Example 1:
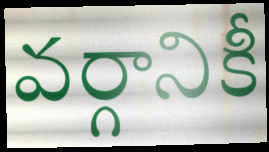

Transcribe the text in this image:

వర్గానికీ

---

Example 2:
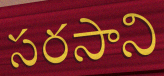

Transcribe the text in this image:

సరసాని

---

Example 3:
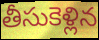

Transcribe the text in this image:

తీసుకెళ్లిన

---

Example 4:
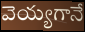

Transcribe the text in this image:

వెయ్యగానే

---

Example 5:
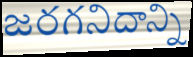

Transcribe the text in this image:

జరగనిదాన్ని